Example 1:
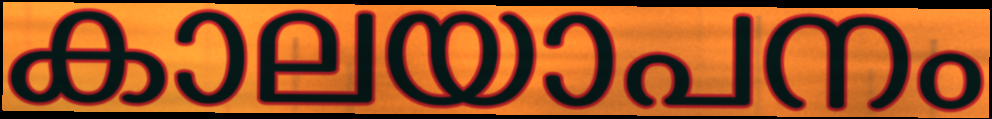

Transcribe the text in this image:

കാലയാപനം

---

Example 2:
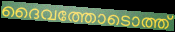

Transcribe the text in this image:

ദൈവത്തോടൊത്ത്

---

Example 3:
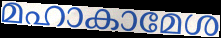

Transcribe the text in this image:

മഹാകാമേശ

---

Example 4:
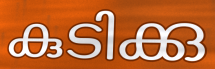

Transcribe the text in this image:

കുടിക്കു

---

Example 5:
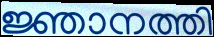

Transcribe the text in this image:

ജ്ഞാനത്തി